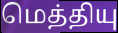
மெத்தியு